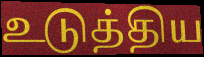
உடுத்திய